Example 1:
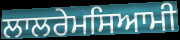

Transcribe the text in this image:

ਲਾਲਰੇਮਸਿਆਮੀ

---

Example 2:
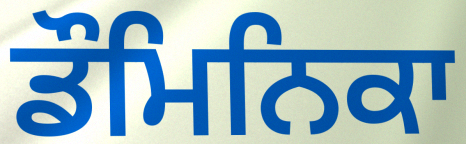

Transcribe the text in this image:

ਡੌਮਿਨਿਕਾ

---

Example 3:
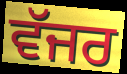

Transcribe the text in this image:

ਵੱਜਰ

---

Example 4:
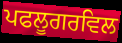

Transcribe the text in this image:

ਪਫਲੂਗਰਵਿਲ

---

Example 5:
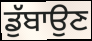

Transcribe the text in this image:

ਡੁੱਬਾਉਣ